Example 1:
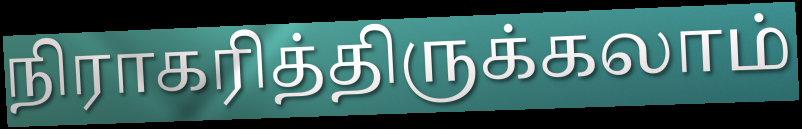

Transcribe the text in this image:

நிராகரித்திருக்கலாம்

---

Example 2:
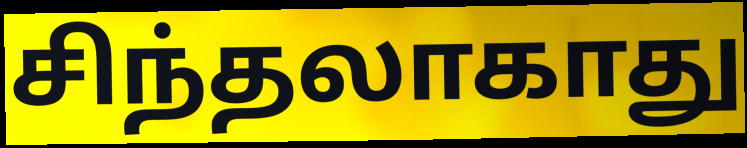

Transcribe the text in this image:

சிந்தலாகாது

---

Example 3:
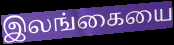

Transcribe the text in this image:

இலங்கையை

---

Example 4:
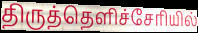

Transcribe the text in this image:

திருத்தெளிச்சேரியில்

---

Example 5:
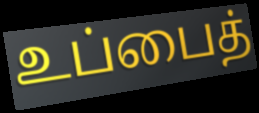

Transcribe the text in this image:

உப்பைத்